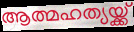
ആത്മഹത്യയ്ക്ക്